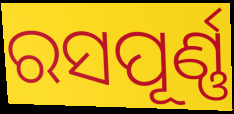
ରସପୂର୍ଣ୍ଣ